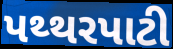
પથ્થરપાટી